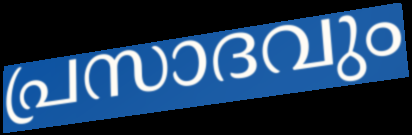
പ്രസാദവും